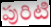
పురిటి